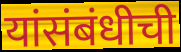
यांसंबंधीची